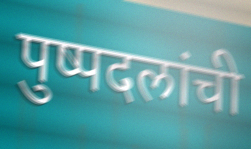
पुष्पदलांची